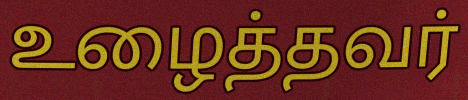
உழைத்தவர்